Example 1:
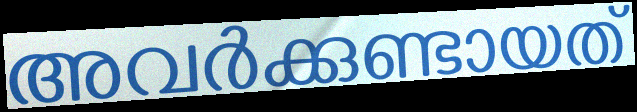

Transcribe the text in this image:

അവർക്കുണ്ടായത്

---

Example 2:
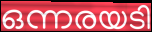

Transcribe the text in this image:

ഒന്നരയടി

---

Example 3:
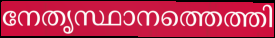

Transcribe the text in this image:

നേതൃസ്ഥാനത്തെത്തി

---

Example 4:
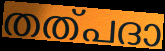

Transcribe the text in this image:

തത്പദാ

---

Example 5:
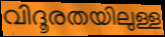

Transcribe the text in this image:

വിദൂരതയിലുള്ള